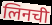
लिनची